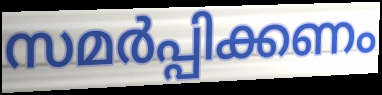
സമർപ്പിക്കണം